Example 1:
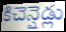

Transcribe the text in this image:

కిచెన్షెడ్లు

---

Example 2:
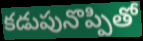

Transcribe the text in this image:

కడుపునొప్పితో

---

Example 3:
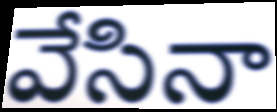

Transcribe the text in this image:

వేసినా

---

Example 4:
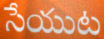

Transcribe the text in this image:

సేయుట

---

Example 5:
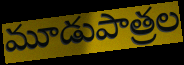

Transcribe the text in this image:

మూడుపాత్రల